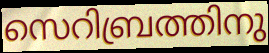
സെറിബ്രത്തിനു